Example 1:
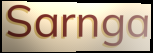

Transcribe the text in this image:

Sarnga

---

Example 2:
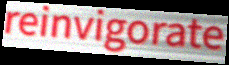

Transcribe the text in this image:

reinvigorate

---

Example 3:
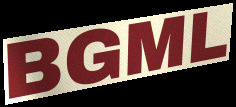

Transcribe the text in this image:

BGML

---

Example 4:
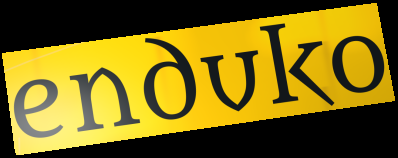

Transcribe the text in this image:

enduko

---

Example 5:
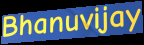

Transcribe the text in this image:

Bhanuvijay